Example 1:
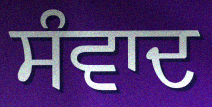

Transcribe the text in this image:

ਸੰਵਾਦ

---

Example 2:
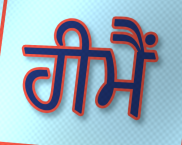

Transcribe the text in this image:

ਹੀਮੈਂ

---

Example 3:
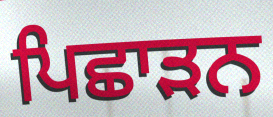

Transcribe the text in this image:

ਪਿਛਾੜਨ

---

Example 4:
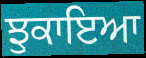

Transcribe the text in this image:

ਝੁਕਾਇਆ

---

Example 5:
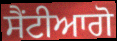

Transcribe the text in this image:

ਸੈਂਟੀਆਗੋ